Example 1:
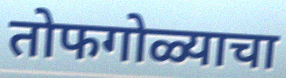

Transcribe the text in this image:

तोफगोळ्याचा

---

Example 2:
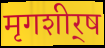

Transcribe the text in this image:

मृगशीर्ष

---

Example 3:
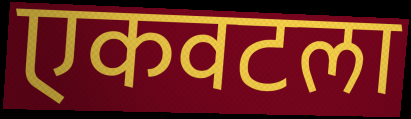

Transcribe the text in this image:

एकवटला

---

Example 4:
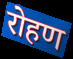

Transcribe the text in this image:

रोहण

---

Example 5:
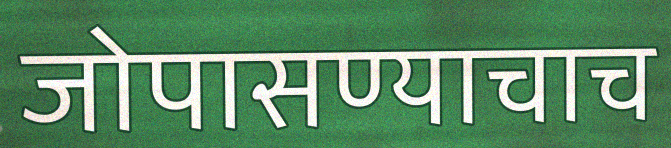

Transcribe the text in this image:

जोपासण्याचाच